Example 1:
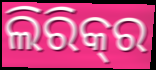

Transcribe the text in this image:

ଲିରିକ୍‍ର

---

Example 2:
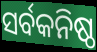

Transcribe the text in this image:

ସର୍ବକନିଷ୍ଠ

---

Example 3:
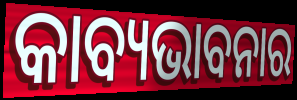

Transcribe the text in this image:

କାବ୍ୟଭାବନାର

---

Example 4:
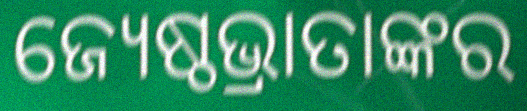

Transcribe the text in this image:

ଜ୍ୟେଷ୍ଠଭ୍ରାତାଙ୍କର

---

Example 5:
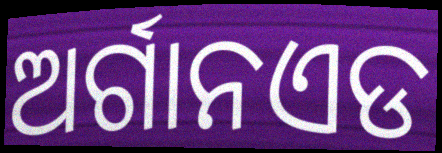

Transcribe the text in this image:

ଅର୍ଗାନଏଡ